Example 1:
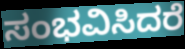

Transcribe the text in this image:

ಸಂಭವಿಸಿದರೆ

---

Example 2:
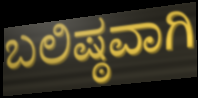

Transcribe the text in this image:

ಬಲಿಷ್ಠವಾಗಿ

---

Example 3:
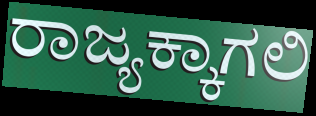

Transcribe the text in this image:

ರಾಜ್ಯಕ್ಕಾಗಲಿ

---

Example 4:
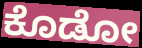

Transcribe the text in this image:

ಕೊಡೋ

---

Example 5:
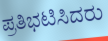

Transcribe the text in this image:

ಪ್ರತಿಭಟಿಸಿದರು